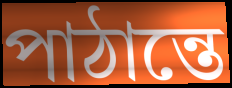
পাঠান্তে